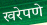
खरेपणे